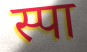
स्पा